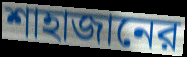
শাহাজানের